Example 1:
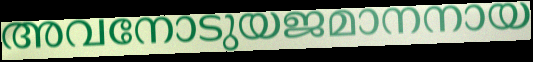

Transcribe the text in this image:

അവനോടുയജമാനനായ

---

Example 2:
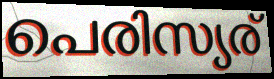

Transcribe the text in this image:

പെരിസ്യര്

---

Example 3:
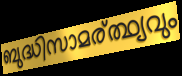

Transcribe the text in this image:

ബുദ്ധിസാമര്ത്ഥ്യവും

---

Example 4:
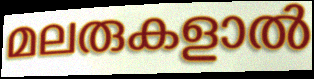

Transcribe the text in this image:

മലരുകളാൽ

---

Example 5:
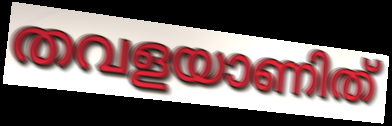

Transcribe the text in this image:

തവളയാണിത്